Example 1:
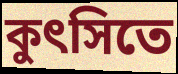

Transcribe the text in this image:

কুৎসিতে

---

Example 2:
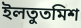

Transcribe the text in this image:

ইলতুতমিশ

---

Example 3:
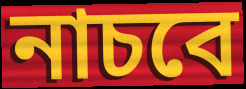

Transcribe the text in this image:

নাচবে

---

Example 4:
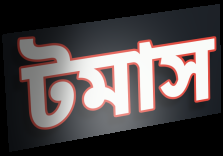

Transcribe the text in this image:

টমাস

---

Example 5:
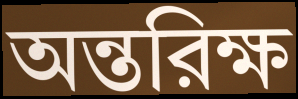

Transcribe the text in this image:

অন্তরিক্ষ